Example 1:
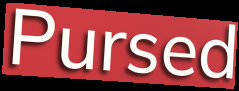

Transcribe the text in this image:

Pursed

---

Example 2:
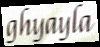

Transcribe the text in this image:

ghyayla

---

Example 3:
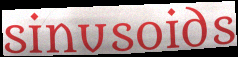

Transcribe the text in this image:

sinusoids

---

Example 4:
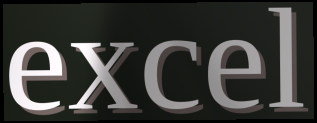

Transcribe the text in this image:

excel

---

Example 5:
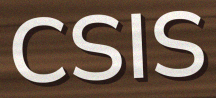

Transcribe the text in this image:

CSIS